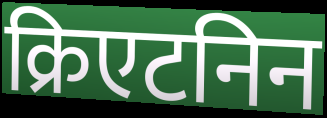
क्रिएटनिन